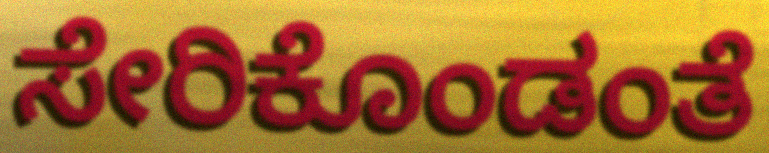
ಸೇರಿಕೊಂಡಂತೆ